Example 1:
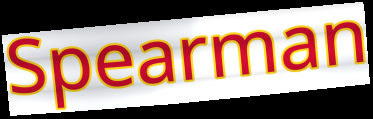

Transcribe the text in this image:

Spearman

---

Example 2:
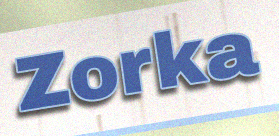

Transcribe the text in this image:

Zorka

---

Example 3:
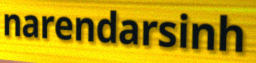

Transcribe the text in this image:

narendarsinh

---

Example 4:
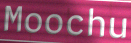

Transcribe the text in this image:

Moochu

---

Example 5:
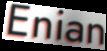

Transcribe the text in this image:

Enian